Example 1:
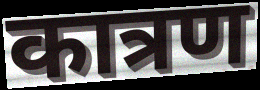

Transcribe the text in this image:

कात्रण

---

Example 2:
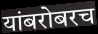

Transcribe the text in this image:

यांबरोबरच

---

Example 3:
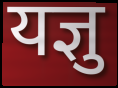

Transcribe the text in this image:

यज्ञु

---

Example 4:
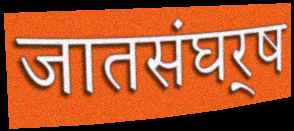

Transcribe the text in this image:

जातसंघर्ष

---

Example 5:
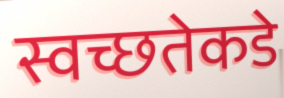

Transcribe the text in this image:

स्वच्छतेकडे